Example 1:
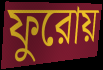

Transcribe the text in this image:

ফুরোয়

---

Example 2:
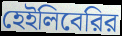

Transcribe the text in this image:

হেইলিবেরির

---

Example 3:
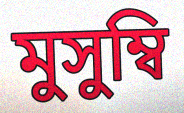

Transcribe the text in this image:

মুসুম্বি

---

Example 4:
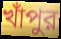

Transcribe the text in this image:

খাঁপুর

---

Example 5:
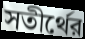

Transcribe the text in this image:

সতীর্থের